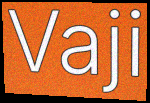
Vaji